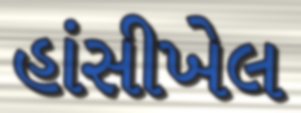
હાંસીખેલ